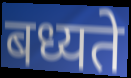
बध्यते